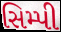
સિમ્પી